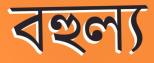
বহুল্য